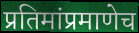
प्रतिमांप्रमाणेच